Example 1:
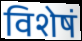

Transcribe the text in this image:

विशेषं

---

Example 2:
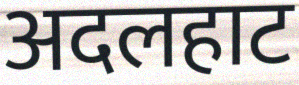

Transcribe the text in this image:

अदलहाट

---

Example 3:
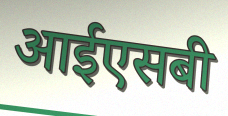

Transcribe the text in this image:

आईएसबी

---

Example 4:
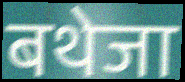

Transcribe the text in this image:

बथेजा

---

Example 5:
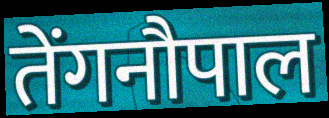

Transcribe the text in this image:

तेंगनौपाल